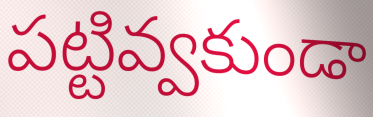
పట్టివ్వకుండా